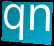
qn